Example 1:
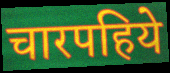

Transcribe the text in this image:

चारपहिये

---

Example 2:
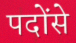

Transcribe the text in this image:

पदोंसे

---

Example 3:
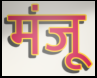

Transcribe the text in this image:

मंजू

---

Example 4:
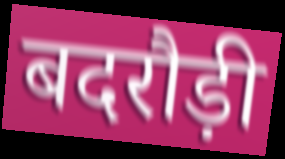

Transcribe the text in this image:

बदरौड़ी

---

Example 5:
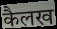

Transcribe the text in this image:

कैलख